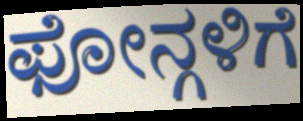
ಫೋನ್ಗಳಿಗೆ